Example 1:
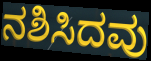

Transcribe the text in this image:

ನಶಿಸಿದವು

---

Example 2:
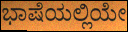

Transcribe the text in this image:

ಭಾಷೆಯಲ್ಲಿಯೇ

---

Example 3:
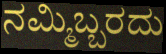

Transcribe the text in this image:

ನಮ್ಮಿಬ್ಬರದು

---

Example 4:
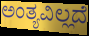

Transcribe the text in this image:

ಅಂತ್ಯವಿಲ್ಲದೆ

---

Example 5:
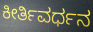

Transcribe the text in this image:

ಕೀರ್ತಿವರ್ಧನ